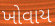
ખોવાય